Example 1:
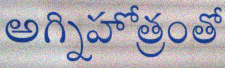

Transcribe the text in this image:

అగ్నిహోత్రంతో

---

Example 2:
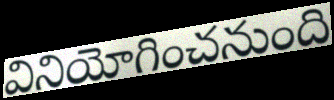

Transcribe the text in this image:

వినియోగించనుంది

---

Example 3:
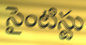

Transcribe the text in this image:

సైంటిస్టు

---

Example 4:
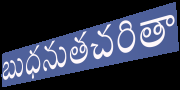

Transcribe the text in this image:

బుధనుతచరితా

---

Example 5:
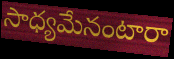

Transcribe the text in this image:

సాధ్యమేనంటారా